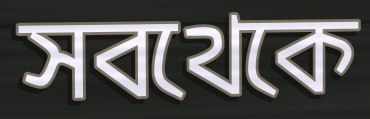
সবথেকে